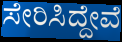
ಸೇರಿಸಿದ್ದೇವೆ